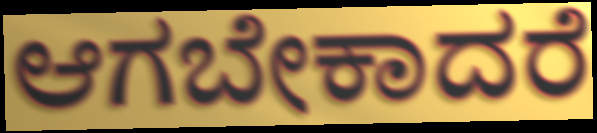
ಆಗಬೇಕಾದರೆ